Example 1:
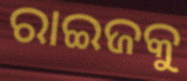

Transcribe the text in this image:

ରାଇଜକୁ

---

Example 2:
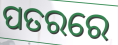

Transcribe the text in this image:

ପତରରେ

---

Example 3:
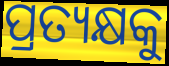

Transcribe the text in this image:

ପ୍ରତ୍ୟକ୍ଷକୁ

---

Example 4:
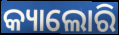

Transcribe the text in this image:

କ୍ୟାଲୋରି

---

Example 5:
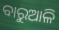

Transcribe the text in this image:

ବାରୁଆଳି